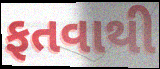
ફતવાથી